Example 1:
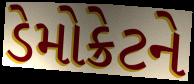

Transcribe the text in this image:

ડેમોક્રેટને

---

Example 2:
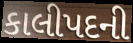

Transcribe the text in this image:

કાલીપદની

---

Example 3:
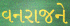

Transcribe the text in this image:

વનરાજને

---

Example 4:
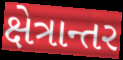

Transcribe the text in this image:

ક્ષેત્રાન્તર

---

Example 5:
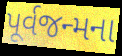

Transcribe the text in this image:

પૂર્વજન્મના